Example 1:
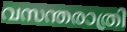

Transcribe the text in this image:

വസന്തരാത്രി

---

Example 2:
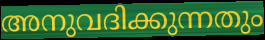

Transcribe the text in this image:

അനുവദിക്കുന്നതും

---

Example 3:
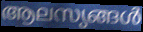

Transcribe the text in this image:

ആലസ്യങ്ങൾ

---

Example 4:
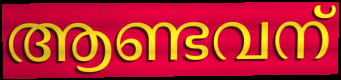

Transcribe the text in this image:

ആണ്ടവന്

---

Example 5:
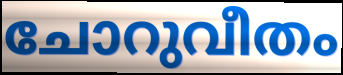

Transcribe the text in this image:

ചോറുവീതം